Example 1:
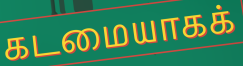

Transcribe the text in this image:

கடமையாகக்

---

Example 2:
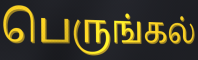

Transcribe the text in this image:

பெருங்கல்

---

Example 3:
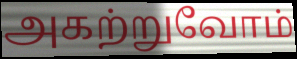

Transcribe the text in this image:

அகற்றுவோம்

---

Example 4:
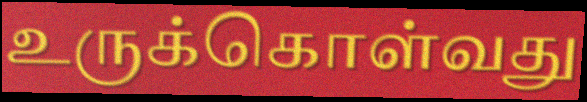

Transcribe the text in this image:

உருக்கொள்வது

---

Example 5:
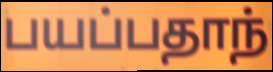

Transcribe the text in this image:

பயப்பதாந்